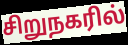
சிறுநகரில்